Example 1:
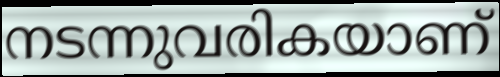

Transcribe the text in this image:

നടന്നുവരികയാണ്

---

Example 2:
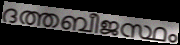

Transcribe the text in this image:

ദത്തബീജസ്ഥം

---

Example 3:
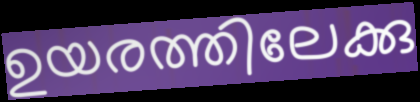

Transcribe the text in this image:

ഉയരത്തിലേക്കു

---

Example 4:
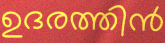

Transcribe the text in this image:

ഉദരത്തിൻ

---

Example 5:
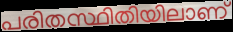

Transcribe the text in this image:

പരിതസ്ഥിതിയിലാണ്